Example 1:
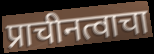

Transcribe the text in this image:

प्राचीनत्वाचा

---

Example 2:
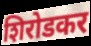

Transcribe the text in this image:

शिरोडकर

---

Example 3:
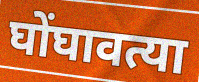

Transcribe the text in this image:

घोंघावत्या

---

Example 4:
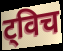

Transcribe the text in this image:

ट्विच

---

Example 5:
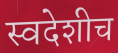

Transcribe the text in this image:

स्वदेशीच